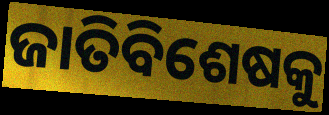
ଜାତିବିଶେଷକୁ